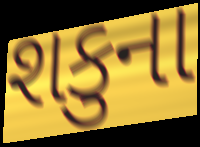
શકુના